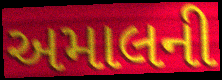
અમાલની